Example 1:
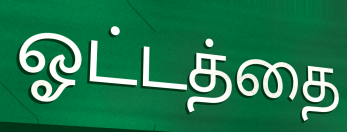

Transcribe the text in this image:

ஓட்டத்தை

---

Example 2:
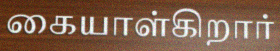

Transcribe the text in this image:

கையாள்கிறார்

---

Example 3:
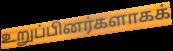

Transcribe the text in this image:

உறுப்பினர்களாகக்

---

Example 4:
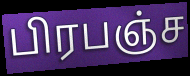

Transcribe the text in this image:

பிரபஞ்ச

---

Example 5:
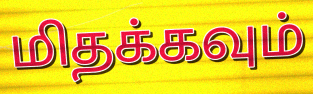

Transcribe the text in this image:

மிதக்கவும்